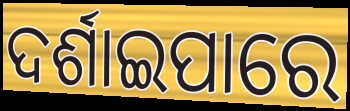
ଦର୍ଶାଇପାରେ